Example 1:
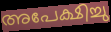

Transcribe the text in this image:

അപേക്ഷിച്ചു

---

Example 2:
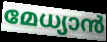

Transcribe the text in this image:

മേധ്യാൻ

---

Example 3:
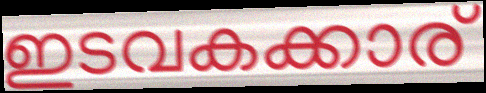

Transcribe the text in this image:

ഇടവകക്കാര്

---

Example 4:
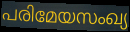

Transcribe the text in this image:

പരിമേയസംഖ്യ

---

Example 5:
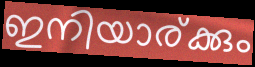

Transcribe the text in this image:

ഇനിയാര്ക്കും